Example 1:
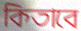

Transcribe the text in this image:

কিতাবে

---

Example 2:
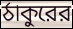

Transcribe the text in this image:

ঠাকুরের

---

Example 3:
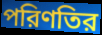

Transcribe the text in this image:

পরিণতির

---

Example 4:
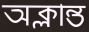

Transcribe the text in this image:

অক্লান্ত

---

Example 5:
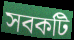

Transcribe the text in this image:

সবকটি